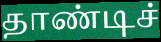
தாண்டிச்